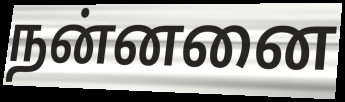
நன்னனை